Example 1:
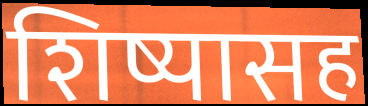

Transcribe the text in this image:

शिष्यासह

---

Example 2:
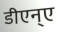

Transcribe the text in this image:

डीएन्ए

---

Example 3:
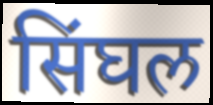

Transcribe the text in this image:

सिंघल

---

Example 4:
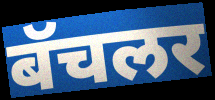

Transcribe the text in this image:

बॅचलर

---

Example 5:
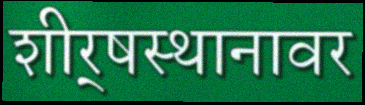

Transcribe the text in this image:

शीर्षस्थानावर